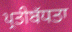
ਪ੍ਰਤੀਬੱਧਤਾ